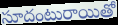
సూదంటురాయితో